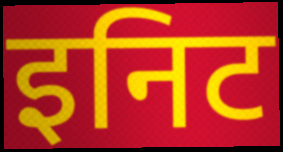
इनिट